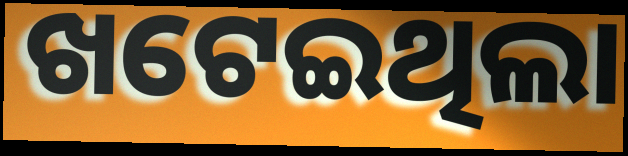
ଖଟେଇଥିଲା